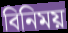
বিনিময়